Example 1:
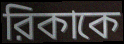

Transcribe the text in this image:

রিকাকে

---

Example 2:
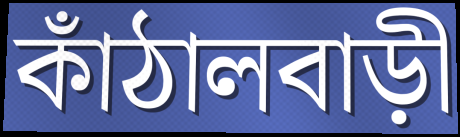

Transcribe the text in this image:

কাঁঠালবাড়ী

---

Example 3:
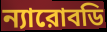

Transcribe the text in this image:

ন্যারোবডি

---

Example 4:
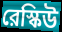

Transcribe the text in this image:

রেস্কিউ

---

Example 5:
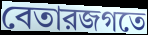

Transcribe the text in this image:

বেতারজগতে